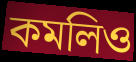
কমলিও